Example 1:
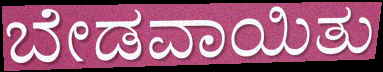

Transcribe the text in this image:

ಬೇಡವಾಯಿತು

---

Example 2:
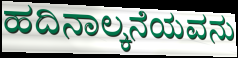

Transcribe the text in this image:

ಹದಿನಾಲ್ಕನೆಯವನು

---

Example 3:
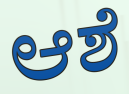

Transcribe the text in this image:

ಆಶೆ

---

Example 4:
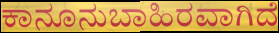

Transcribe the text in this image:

ಕಾನೂನುಬಾಹಿರವಾಗಿದೆ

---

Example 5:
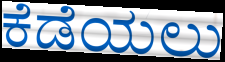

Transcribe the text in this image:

ಕೆಡೆಯಲು